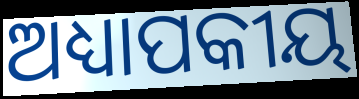
ଅଧ୍ୟାପକୀୟ